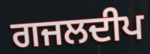
ਗਜਲਦੀਪ